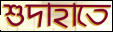
শুদাহাতে